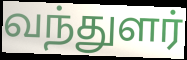
வந்துளர்